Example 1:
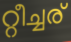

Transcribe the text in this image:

റ്റീച്ചര്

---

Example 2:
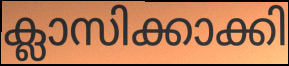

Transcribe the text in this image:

ക്ലാസിക്കാക്കി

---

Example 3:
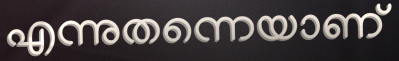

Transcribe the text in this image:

എന്നുതന്നെയാണ്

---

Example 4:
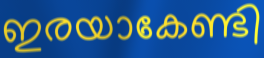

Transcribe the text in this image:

ഇരയാകേണ്ടി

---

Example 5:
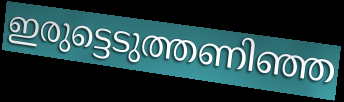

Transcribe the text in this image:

ഇരുട്ടെടുത്തണിഞ്ഞ